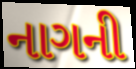
નાગની